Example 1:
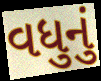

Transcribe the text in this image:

વધુનું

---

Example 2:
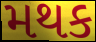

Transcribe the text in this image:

મથક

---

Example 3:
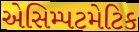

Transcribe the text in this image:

એસિમ્પટમેટિક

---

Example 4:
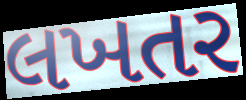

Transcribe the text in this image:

લખતર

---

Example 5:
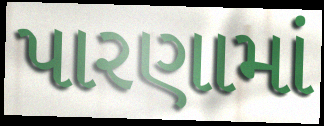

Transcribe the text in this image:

પારણામાં